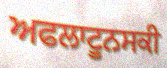
ਅਫਲਾਟੂਨਸਕੀ